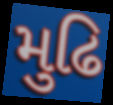
મુઢિ